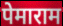
पेमाराम